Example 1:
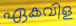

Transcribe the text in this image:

ഏകവിള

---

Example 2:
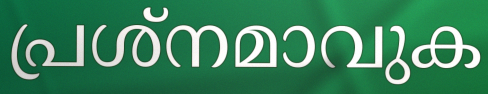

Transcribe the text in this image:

പ്രശ്നമാവുക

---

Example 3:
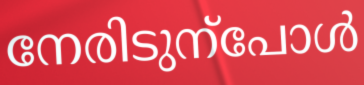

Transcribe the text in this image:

നേരിടുന്പോൾ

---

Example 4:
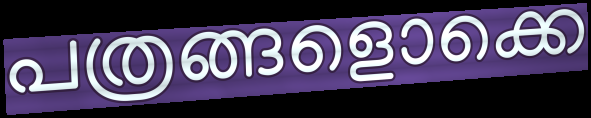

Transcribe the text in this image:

പത്രങ്ങളൊക്കെ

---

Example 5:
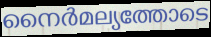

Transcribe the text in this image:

നൈർമല്യത്തോടെ